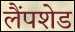
लैंपशेड